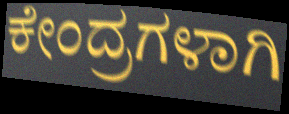
ಕೇಂದ್ರಗಳಾಗಿ